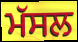
ਮੱਸਲ